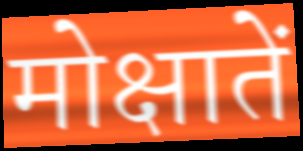
मोक्षातें